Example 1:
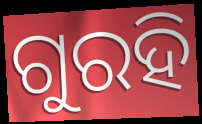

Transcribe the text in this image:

ଗୁରହି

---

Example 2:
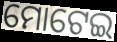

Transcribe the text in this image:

ମୋଟେଇ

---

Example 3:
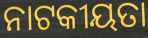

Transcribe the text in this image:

ନାଟକୀୟତା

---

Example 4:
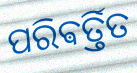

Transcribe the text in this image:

ପରିଵର୍ତ୍ତିତ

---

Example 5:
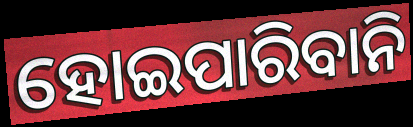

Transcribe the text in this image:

ହୋଇପାରିବାନି